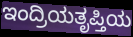
ಇಂದ್ರಿಯತೃಪ್ತಿಯ